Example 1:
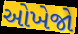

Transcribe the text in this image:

ઓખેજો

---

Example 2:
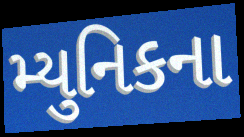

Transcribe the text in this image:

મ્યુનિકના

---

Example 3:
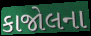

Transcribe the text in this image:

કાજોલના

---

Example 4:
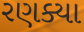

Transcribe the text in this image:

રણક્યા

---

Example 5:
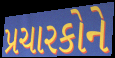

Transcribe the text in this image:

પ્રચારકોને